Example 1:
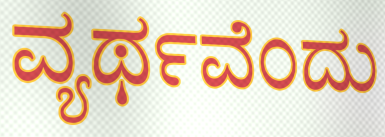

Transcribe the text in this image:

ವ್ಯರ್ಥವೆಂದು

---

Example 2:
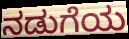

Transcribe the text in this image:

ನಡುಗೆಯ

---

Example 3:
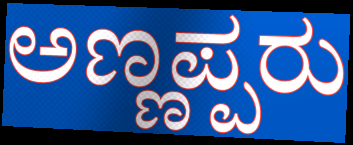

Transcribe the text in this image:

ಅಣ್ಣಪ್ಪರು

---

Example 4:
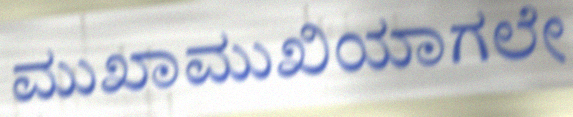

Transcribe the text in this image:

ಮುಖಾಮುಖಿಯಾಗಲೇ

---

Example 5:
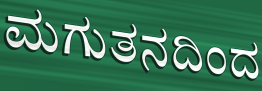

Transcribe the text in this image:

ಮಗುತನದಿಂದ